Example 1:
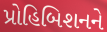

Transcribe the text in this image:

પ્રોહિબિશનને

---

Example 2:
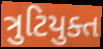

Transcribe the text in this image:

ત્રુટિયુક્ત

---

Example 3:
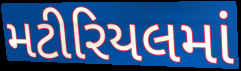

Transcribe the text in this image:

મટીરિયલમાં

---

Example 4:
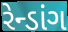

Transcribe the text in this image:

રેન્ડાંગ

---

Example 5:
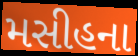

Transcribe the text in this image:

મસીહના